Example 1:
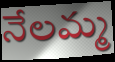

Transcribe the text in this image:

నేలమ్మ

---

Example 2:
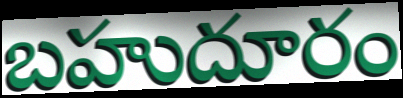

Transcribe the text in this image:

బహుదూరం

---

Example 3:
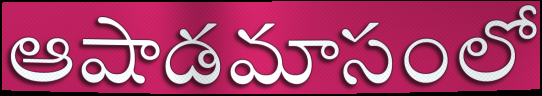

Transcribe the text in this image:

ఆషాడమాసంలో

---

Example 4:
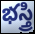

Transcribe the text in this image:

భస్త్రి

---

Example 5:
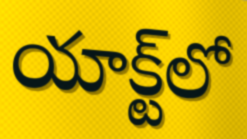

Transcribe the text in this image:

యాక్ట్‌లో